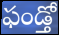
ఫండ్తో